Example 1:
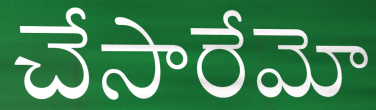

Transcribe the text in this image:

చేసారేమో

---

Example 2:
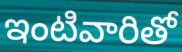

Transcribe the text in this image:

ఇంటివారితో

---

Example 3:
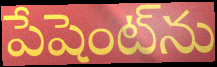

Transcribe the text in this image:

పేషెంట్‌ను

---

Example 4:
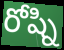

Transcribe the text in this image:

రోష్ని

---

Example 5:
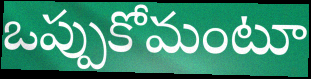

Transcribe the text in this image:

ఒప్పుకోమంటూ